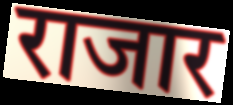
राजार